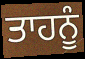
ਤਾਹਨੂੰ